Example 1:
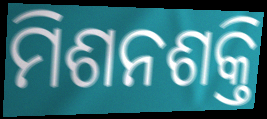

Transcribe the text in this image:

ମିଶନଶକ୍ତି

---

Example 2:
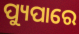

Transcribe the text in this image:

ପ୍ୟୁପାରେ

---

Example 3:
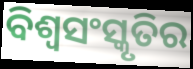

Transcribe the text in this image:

ବିଶ୍ୱସଂସ୍କୃତିର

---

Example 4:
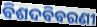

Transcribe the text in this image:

ବିଶଦବିବରଣୀ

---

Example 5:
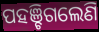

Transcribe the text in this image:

ପହଞ୍ଚିଗଲେଣି